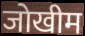
जोखीम